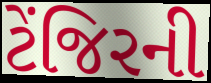
ટેંજિરની